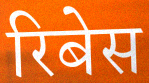
रिबेस